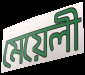
মেয়েলী